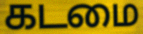
கடமை